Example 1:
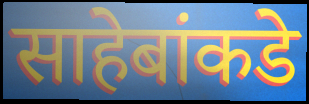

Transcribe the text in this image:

साहेबांकडे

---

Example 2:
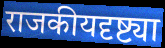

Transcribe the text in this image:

राजकीयदृष्ट्या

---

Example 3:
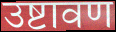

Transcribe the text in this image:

उष्टावण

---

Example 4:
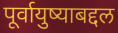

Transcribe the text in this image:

पूर्वायुष्याबद्दल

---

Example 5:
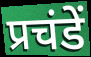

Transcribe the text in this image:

प्रचंडें